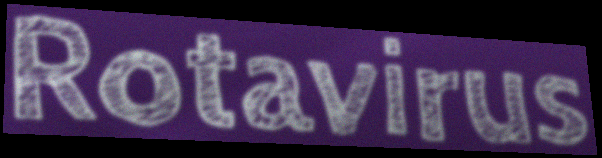
Rotavirus